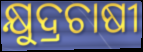
କ୍ଷୁଦ୍ରଚାଷୀ